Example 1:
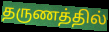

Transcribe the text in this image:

தருணத்தில்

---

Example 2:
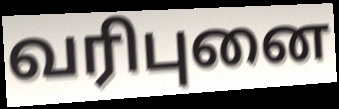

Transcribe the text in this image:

வரிபுனை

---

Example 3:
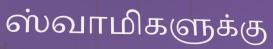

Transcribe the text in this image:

ஸ்வாமிகளுக்கு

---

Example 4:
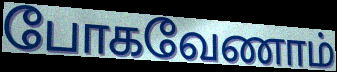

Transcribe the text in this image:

போகவேணாம்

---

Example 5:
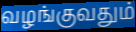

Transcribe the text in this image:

வழங்குவதும்